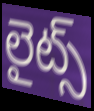
లైట్స్